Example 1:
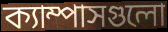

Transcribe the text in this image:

ক্যাম্পাসগুলো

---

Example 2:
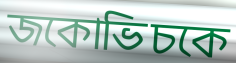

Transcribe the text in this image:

জকোভিচকে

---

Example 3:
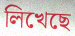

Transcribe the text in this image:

লিখেছে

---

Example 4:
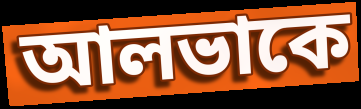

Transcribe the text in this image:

আলভাকে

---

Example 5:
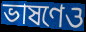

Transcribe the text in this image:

ভাষণেও